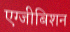
एग्जीबिशन